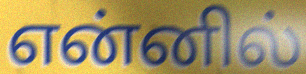
என்னில்